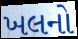
ખલનો